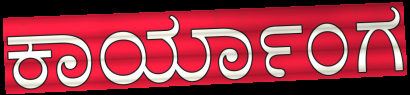
ಕಾರ್ಯಾಂಗ